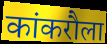
कांकरौला